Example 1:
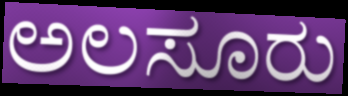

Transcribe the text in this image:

ಅಲಸೂರು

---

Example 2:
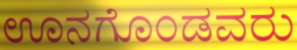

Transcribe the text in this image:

ಊನಗೊಂಡವರು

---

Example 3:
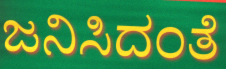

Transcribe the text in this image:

ಜನಿಸಿದಂತೆ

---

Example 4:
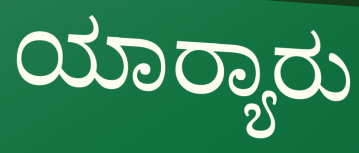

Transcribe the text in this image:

ಯಾರ‍್ಯಾರು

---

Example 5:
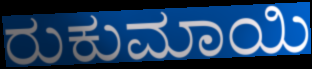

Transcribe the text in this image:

ರುಕುಮಾಯಿ